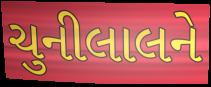
ચુનીલાલને